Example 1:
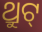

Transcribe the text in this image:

ଥ୍ରୁଟ୍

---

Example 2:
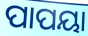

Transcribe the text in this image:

ପାପୟା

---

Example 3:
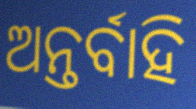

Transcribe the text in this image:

ଅନ୍ତର୍ବାହି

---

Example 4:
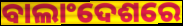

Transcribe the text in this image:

ବାଲାଂଦେଶରେ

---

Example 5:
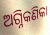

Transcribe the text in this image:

ଅଗ୍ନିକଣିକା